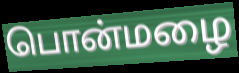
பொன்மழை